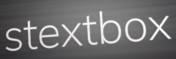
stextbox